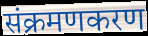
संक्रमणकरण